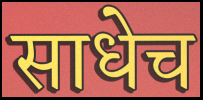
साधेच